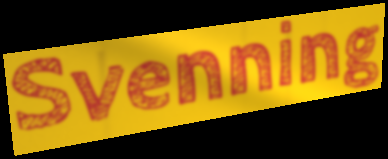
Svenning